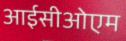
आईसीओएम